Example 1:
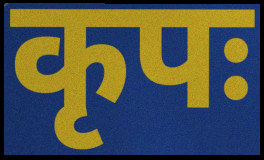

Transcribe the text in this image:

कृपः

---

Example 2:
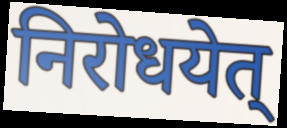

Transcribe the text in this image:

निरोधयेत्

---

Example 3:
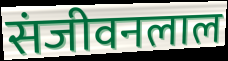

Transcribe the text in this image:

संजीवनलाल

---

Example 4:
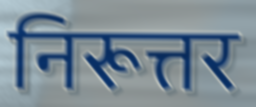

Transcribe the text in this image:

निरूत्तर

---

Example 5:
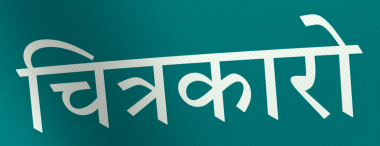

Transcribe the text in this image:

चित्रकारो